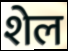
शेल